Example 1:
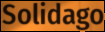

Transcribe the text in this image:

Solidago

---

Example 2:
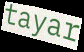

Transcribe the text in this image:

tayar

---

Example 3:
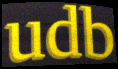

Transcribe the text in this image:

udb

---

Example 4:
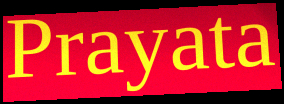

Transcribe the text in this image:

Prayata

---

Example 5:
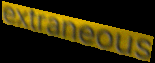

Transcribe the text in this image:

extraneous